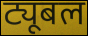
ट्यूबल